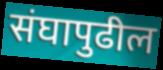
संघापुढील